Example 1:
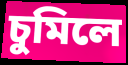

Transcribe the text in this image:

চুমিলে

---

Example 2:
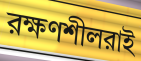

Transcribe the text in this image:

রক্ষণশীলরাই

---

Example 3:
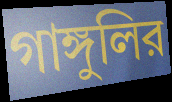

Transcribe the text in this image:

গাঙ্গুলির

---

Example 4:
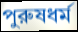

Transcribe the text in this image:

পুরুষধর্ম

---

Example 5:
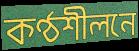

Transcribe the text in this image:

কণ্ঠশীলনে